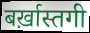
बर्ख़ास्तगी